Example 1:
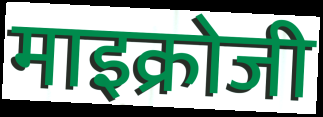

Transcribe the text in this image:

माइक्रोजी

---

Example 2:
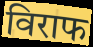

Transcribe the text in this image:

विराफ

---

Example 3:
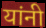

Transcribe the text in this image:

यांनी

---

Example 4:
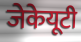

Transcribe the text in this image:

जेकेयूटी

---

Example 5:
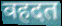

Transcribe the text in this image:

वहदत